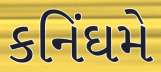
કનિંઘમે